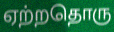
ஏற்றதொரு